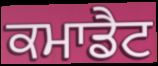
ਕਮਾਡੈਟ